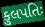
કુલપતિઃ